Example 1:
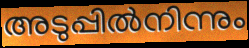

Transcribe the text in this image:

അടുപ്പിൽനിന്നും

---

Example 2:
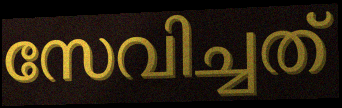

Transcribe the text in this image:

സേവിച്ചത്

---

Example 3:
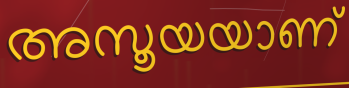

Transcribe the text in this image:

അസൂയയാണ്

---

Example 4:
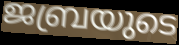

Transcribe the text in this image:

ജബ്രയുടെ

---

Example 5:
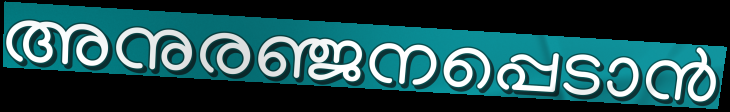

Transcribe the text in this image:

അനുരഞ്ജനപ്പെടാൻ